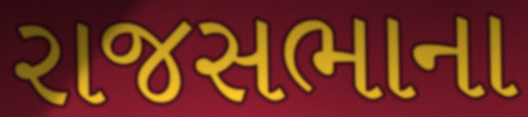
રાજસભાના